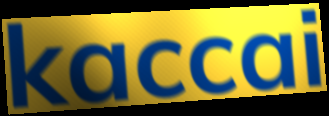
kaccai